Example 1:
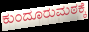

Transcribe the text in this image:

ಕುಂದೂರುಮಠಕ್ಕೆ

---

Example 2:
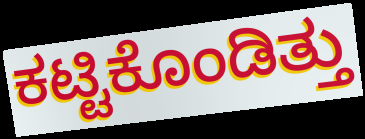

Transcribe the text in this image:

ಕಟ್ಟಿಕೊಂಡಿತ್ತು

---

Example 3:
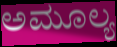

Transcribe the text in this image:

ಅಮೂಲ್ಯ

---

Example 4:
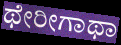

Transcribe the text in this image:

ಥೇರೀಗಾಥಾ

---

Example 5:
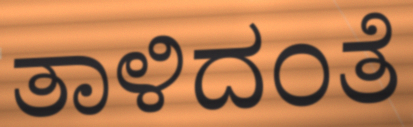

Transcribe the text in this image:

ತಾಳಿದಂತೆ